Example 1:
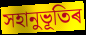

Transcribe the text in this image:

সহানুভূতিৰ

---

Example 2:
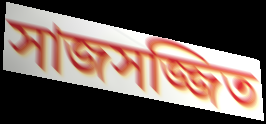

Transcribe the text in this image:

সাজসজ্জিত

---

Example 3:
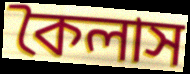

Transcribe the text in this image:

কৈলাস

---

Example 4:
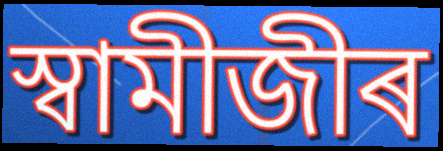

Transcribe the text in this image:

স্বামীজীৰ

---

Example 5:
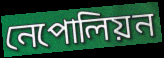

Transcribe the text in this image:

নেপোলিয়ন